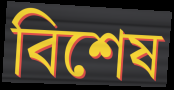
বিশেষ